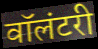
वॉलंटरी